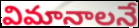
విమానాలనే